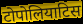
टोपोलियाटिस